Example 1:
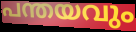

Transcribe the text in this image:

പന്തയവും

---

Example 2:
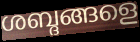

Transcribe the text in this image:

ശബ്ദങ്ങളെ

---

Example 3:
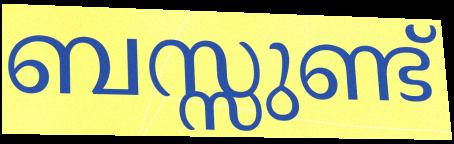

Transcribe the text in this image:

ബസ്സുണ്ട്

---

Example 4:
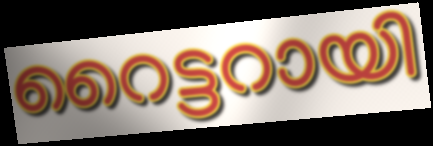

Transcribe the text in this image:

റൈട്ടറായി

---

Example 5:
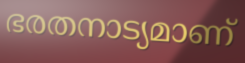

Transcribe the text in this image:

ഭരതനാട്യമാണ്